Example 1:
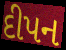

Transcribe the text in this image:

દીપન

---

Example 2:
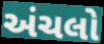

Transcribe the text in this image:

અંચલો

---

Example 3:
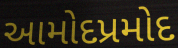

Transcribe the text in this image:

આમોદપ્રમોદ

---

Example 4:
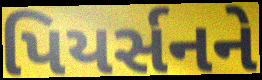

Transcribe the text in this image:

પિયર્સનને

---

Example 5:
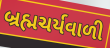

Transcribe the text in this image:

બ્રહ્મચર્યવાળી